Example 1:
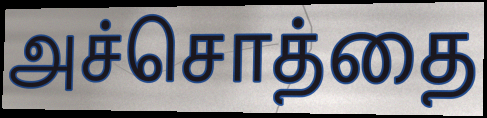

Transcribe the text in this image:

அச்சொத்தை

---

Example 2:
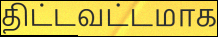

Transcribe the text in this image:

திட்டவட்டமாக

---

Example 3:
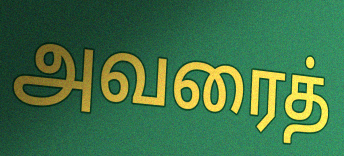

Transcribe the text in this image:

அவரைத்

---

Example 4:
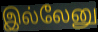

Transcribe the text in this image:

இல்லேனு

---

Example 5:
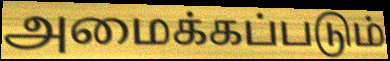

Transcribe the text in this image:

அமைக்கப்படும்